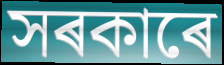
সৰকাৰে